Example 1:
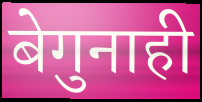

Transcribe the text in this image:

बेगुनाही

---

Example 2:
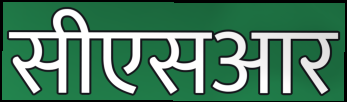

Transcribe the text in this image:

सीएसआर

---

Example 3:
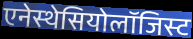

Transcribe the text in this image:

एनेस्थेसियोलॉजिस्ट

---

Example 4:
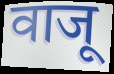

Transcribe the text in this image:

वाजू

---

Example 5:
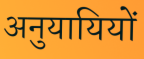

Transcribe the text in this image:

अनुयायियों